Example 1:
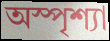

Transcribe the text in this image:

অস্পৃশ্যা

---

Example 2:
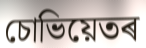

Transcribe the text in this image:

চোভিয়েতৰ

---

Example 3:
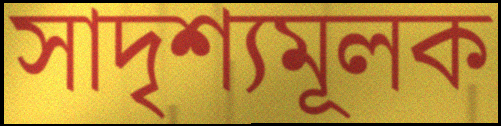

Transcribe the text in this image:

সাদৃশ্যমূলক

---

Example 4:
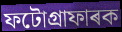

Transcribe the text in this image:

ফটোগ্ৰাফাৰক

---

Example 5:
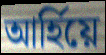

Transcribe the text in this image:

আৰ্হিয়ে